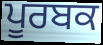
ਪੂਰਬਕ